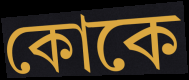
কোকে